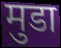
मुडा